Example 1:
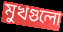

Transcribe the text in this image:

মুখগুলো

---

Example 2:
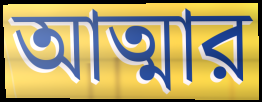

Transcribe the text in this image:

আত্মার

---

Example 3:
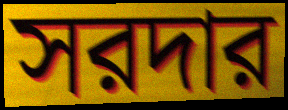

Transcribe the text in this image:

সরদার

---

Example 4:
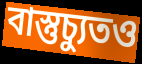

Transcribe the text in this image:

বাস্তুচ্যুতও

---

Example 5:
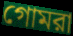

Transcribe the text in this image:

গোমরা